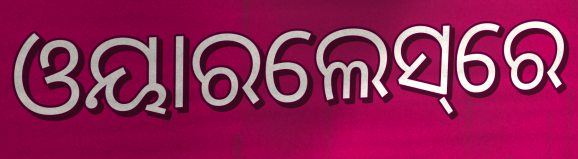
ଓୟାରଲେସ୍‌ରେ